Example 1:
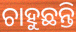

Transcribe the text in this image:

ଚାହୁଛନ୍ତି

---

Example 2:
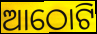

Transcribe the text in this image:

ଆଠୋଟି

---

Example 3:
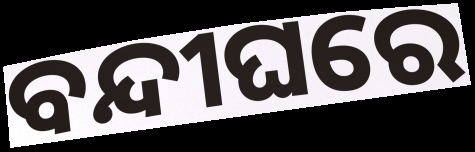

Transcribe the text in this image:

ବନ୍ଦୀଘରେ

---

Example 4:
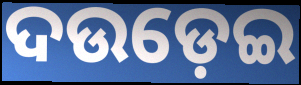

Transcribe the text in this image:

ଦଉଡ଼େଇ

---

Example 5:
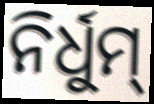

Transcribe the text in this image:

ନିର୍ଧୁମ୍